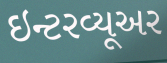
ઇન્ટરવ્યૂઅર